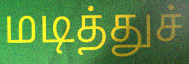
மடித்துச்